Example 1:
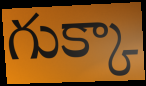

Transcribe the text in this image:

గుక్కా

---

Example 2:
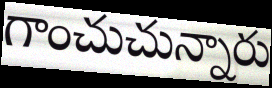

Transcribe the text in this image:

గాంచుచున్నారు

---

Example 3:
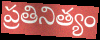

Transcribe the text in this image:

ప్రతినిత్యం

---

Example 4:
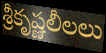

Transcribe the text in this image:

శ్రీకృష్ణలీలలు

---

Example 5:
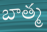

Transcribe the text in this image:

బాత్మ